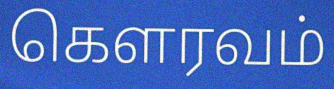
கெளரவம்